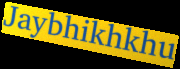
Jaybhikhkhu